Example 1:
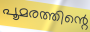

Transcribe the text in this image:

പൂമരത്തിന്റെ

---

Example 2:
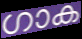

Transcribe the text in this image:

ഗാക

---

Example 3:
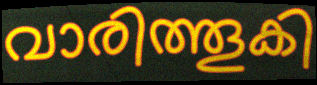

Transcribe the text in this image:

വാരിത്തൂകി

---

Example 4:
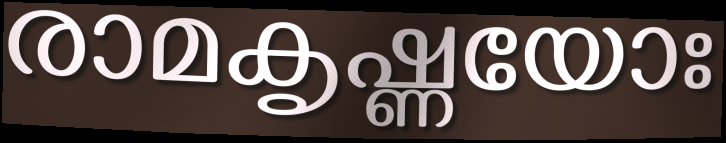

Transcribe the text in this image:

രാമകൃഷ്ണയോഃ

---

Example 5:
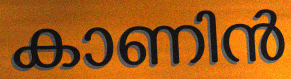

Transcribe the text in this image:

കാണിൻ